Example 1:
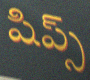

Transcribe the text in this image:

షిప్స్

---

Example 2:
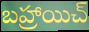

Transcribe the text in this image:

బహ్రాయిచ్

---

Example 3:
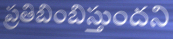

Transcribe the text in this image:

ప్రతిబింబిస్తుందని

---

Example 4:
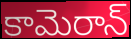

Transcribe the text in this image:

కామెరాన్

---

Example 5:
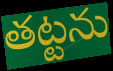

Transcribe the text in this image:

తట్టను